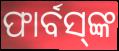
ଫାର୍ବସ୍‌ଙ୍କ